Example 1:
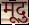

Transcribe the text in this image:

मूदु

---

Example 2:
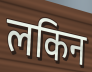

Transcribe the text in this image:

लकिन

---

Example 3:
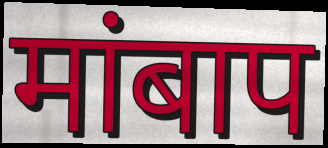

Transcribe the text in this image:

मांबाप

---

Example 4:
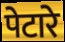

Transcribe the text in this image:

पेटारे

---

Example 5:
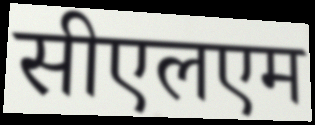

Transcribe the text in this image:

सीएलएम